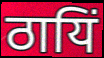
ठायिं